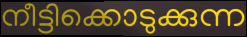
നീട്ടിക്കൊടുക്കുന്ന